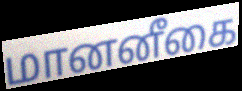
மானனீகை